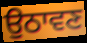
ਉਠਾਵਣ